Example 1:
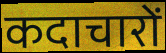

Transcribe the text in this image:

कदाचारों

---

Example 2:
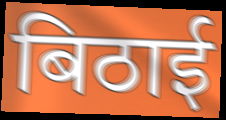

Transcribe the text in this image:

बिठाई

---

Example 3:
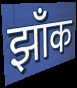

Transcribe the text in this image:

झाँक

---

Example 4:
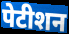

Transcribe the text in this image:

पेटीशन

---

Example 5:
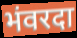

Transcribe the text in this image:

भंवरदा